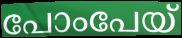
പോംപേയ്